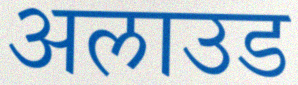
अलाउड